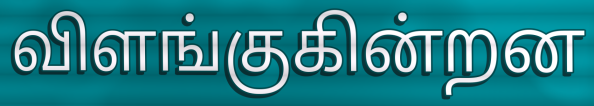
விளங்குகின்றன